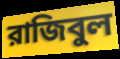
রাজিবুল